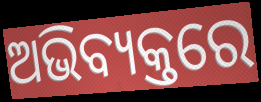
ଅଭିବ୍ୟକ୍ତରେ